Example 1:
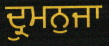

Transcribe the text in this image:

ਦ੍ਰੁਮਨੁਜਾ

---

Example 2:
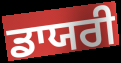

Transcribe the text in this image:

ਡਾਯਰੀ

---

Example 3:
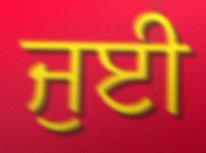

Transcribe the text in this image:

ਜੁਈ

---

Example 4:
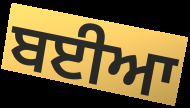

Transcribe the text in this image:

ਬਈਆ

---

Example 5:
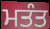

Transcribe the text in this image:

ਮਤੰਤ